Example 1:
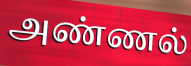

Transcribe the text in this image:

அண்ணல்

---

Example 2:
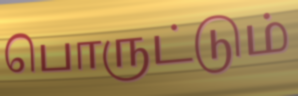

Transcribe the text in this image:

பொருட்டும்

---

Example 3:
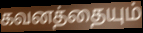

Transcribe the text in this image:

கவனத்தையும்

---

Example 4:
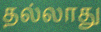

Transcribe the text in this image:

தல்லாது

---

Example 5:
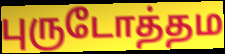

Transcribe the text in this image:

புருடோத்தம